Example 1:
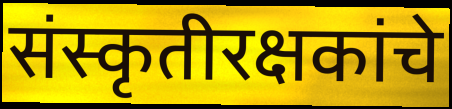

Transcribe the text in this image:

संस्कृतीरक्षकांचे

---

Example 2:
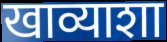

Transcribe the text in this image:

खाव्याशा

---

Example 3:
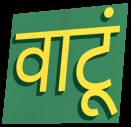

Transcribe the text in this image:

वाटूं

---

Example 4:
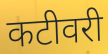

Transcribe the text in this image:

कटीवरी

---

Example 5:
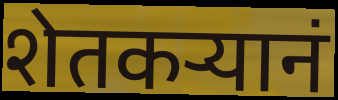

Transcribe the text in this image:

शेतकऱ्यानं